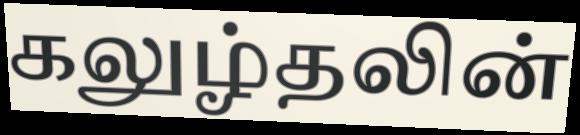
கலுழ்தலின்